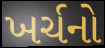
ખર્ચનો